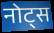
नोट्स